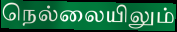
நெல்லையிலும்